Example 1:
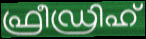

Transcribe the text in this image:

ഫ്രീഡ്രിഹ്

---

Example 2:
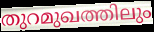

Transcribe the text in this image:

തുറമുഖത്തിലും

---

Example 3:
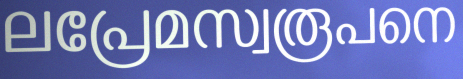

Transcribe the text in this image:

ലപ്രേമസ്വരൂപനെ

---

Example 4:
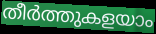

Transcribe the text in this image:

തീർത്തുകളയാം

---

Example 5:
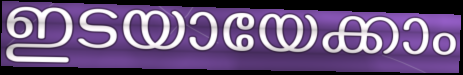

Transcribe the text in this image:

ഇടയായേക്കാം